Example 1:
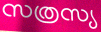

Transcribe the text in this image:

സത്രസ്യ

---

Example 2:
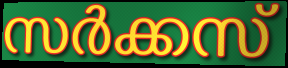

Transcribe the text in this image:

സർക്കസ്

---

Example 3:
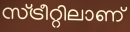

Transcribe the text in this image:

സ്ട്രീറ്റിലാണ്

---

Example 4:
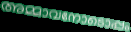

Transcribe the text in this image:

അമ്മാവനോടൊപ്പം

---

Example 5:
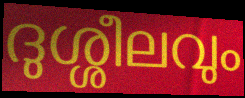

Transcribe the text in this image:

ദുശ്ശീലവും